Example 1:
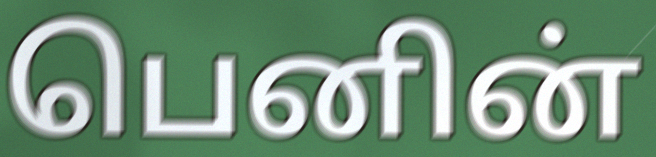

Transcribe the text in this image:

பெனின்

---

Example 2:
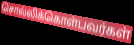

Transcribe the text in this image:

சொல்லிக்கொள்பவர்கள்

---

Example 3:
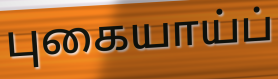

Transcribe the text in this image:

புகையாய்ப்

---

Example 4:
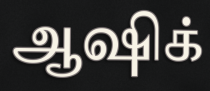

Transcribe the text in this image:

ஆஷிக்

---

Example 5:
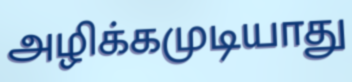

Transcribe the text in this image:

அழிக்கமுடியாது